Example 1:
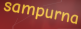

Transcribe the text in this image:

sampurna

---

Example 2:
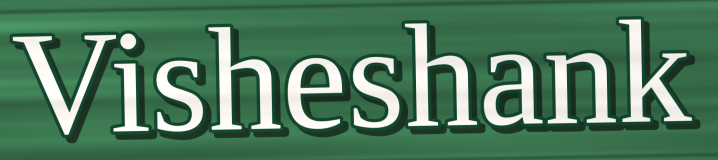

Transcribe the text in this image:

Visheshank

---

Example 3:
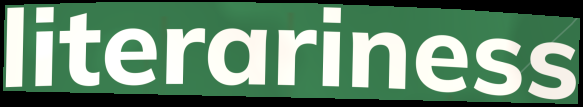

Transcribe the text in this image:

literariness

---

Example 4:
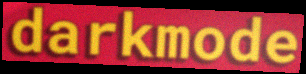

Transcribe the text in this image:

darkmode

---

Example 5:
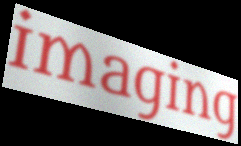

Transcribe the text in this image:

imaging